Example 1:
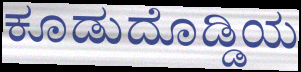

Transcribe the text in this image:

ಕೂಡುದೊಡ್ಡಿಯ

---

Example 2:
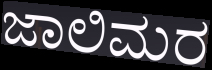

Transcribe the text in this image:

ಜಾಲಿಮರ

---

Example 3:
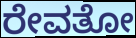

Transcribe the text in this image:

ರೇವತೋ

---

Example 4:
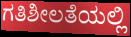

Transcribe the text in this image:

ಗತಿಶೀಲತೆಯಲ್ಲಿ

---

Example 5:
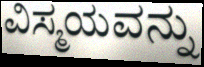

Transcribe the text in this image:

ವಿಸ್ಮಯವನ್ನು